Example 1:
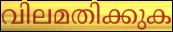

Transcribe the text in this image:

വിലമതിക്കുക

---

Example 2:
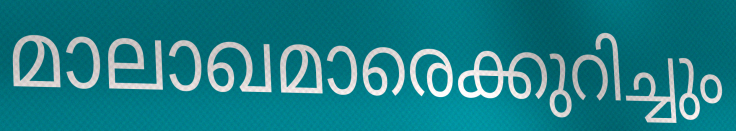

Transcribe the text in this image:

മാലാഖമാരെക്കുറിച്ചും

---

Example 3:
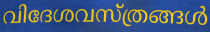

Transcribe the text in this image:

വിദേശവസ്ത്രങ്ങൾ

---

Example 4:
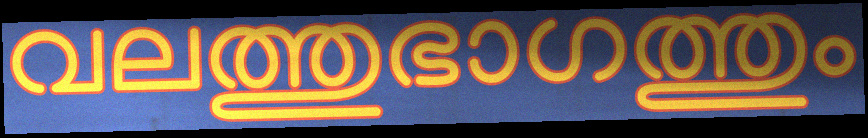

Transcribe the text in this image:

വലത്തുഭാഗത്തും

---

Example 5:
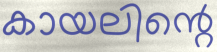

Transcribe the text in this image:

കായലിന്റെ